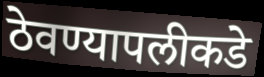
ठेवण्यापलीकडे